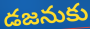
డజనుకు